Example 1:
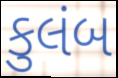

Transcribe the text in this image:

કુલંબ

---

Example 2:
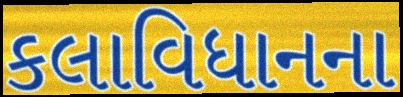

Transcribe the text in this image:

કલાવિધાનના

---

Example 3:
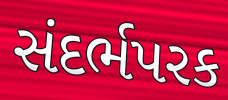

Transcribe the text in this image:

સંદર્ભપરક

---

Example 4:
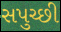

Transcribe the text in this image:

સપુચ્છી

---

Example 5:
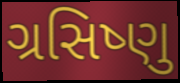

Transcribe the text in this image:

ગ્રસિષ્ણુ